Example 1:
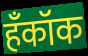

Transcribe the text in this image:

हँकॉक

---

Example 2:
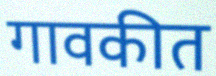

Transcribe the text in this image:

गावकीत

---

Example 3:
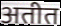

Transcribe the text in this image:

अतीत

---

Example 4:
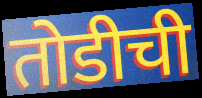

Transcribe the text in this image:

तोडीची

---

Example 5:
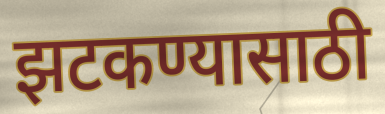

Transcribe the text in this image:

झटकण्यासाठी